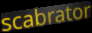
scabrator